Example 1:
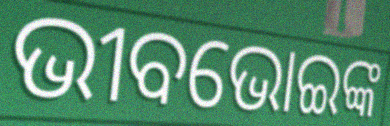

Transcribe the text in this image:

ଭୀବଭୋଇଙ୍କ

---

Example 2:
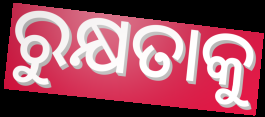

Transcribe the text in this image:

ରୁକ୍ଷତାକୁ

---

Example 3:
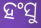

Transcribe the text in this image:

ହଂସୁ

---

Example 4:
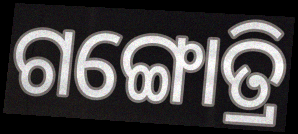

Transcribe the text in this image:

ଗଙ୍ଗୋତ୍ରି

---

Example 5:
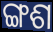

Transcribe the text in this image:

ଙ୍ଗଶ